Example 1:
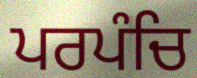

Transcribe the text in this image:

ਪਰਪੰਚਿ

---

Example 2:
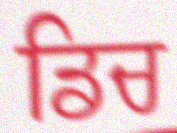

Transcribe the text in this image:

ਡਿਚ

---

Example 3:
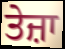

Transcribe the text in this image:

ਤੇਜ਼ਾ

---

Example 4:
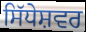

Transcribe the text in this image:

ਸਿੱਧੇਸ਼ਵਰ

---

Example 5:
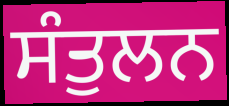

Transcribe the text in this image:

ਸੰਤੁਲਨ